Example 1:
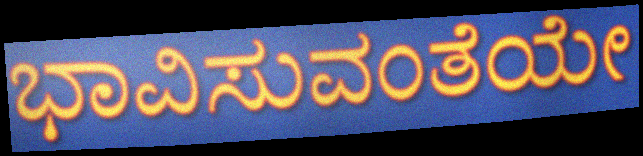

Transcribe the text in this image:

ಭಾವಿಸುವಂತೆಯೇ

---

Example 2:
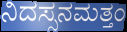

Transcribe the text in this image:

ನಿದಸ್ಸನಮತ್ತಂ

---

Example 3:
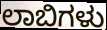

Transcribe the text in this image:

ಲಾಬಿಗಳು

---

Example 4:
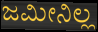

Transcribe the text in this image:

ಜಮೀನಿಲ್ಲ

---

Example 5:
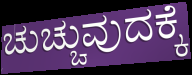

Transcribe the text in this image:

ಚುಚ್ಚುವುದಕ್ಕೆ